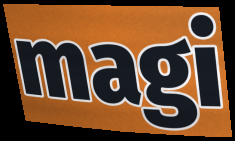
magi